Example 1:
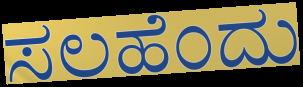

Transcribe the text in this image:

ಸಲಹೆಂದು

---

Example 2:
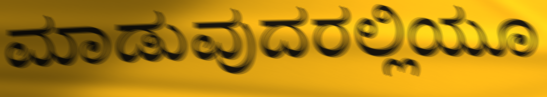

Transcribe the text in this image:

ಮಾಡುವುದರಲ್ಲಿಯೂ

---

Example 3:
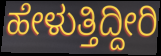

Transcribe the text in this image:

ಹೇಳುತ್ತಿದ್ದೀರಿ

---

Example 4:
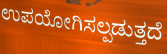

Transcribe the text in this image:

ಉಪಯೋಗಿಸಲ್ಪಡುತ್ತದೆ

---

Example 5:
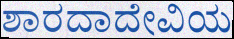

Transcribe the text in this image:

ಶಾರದಾದೇವಿಯ